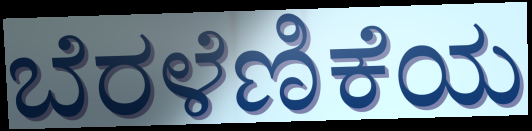
ಬೆರಳೆಣಿಕೆಯ